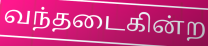
வந்தடைகின்ற